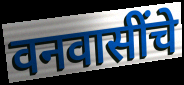
वनवासींचे